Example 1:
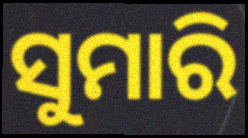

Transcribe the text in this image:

ସୁମାରି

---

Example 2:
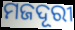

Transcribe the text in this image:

ମଜଦୂରୀ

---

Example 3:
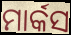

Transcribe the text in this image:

ମାର୍କସ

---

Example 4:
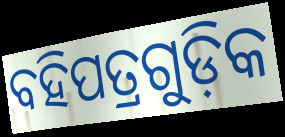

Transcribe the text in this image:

ବହିପତ୍ରଗୁଡ଼ିକ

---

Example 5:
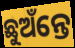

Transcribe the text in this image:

ଛୁଅଁନ୍ତେ